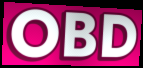
OBD